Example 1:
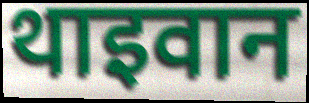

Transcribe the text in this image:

थाइवान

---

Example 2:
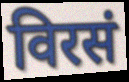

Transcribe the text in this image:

विरसं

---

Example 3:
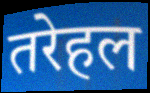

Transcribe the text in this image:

तरेहल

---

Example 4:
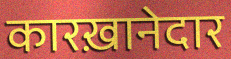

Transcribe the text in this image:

कारख़ानेदार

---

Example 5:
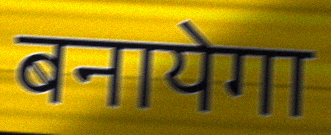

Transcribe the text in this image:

बनायेगा